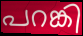
പറങ്കി